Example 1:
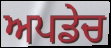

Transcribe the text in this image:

ਅਪਡੇਚ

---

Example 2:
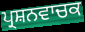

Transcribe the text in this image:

ਪ੍ਰਸ਼ਨਵਾਚਕ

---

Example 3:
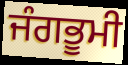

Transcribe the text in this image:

ਜੰਗਭੂਮੀ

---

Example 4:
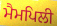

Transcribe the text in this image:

ਮੈਮਪਿਲੀ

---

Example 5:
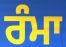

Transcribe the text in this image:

ਰੰਮਾ